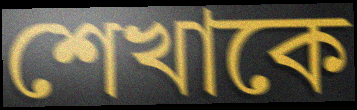
শেখাকে